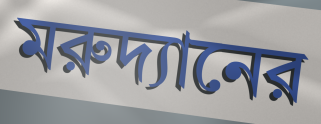
মরুদ্যানের